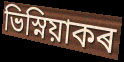
ভিস্নিয়াকৰ